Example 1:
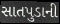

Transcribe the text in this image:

સાતપુડાની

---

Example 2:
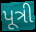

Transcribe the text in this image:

પૂત્રી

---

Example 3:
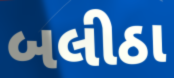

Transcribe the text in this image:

બલીઠા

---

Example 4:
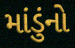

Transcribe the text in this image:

માંડુંનો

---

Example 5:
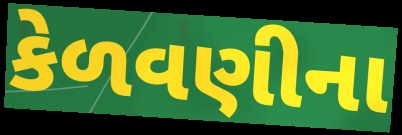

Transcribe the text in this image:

કેળવણીના